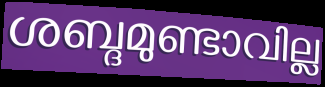
ശബ്ദമുണ്ടാവില്ല